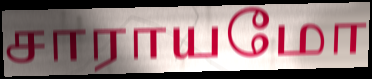
சாராயமோ